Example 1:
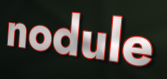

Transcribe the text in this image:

nodule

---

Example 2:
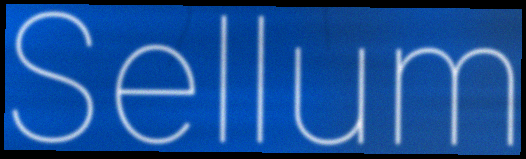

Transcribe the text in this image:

Sellum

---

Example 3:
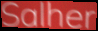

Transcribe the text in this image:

Salher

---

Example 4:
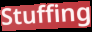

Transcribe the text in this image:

Stuffing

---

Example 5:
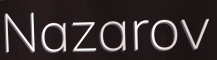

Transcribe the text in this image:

Nazarov